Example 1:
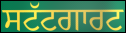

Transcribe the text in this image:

ਸਟੱਟਗਾਰਟ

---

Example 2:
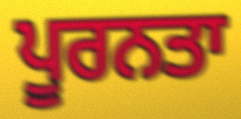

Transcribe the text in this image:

ਪੂਰਨਤਾ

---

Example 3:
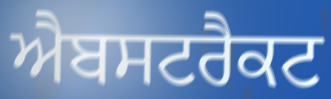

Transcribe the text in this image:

ਐਬਸਟਰੈਕਟ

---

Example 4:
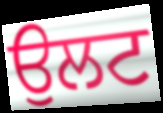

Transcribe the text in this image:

ਉਲਟ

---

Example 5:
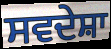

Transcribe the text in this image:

ਸਵਦੇਸ਼ਾ